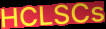
HCLSCs